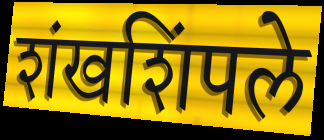
शंखशिंपले